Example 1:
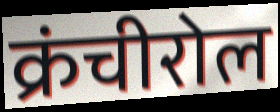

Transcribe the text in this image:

क्रंचीरोल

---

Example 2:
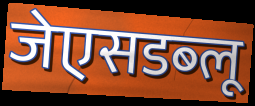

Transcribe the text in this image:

जेएसडब्‍लू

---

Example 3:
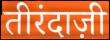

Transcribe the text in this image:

तीरंदाज़ी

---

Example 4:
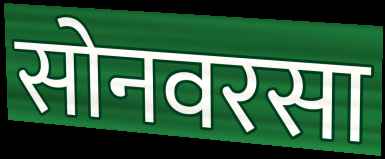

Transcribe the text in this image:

सोनवरसा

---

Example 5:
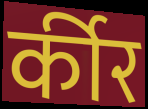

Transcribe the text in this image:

र्कीर